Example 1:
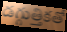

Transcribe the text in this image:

డగ్గుత్తికతో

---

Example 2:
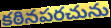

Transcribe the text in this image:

కఠినపరచును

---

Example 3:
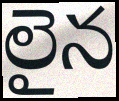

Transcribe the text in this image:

లైన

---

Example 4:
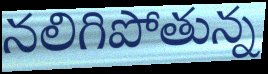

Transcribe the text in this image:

నలిగిపోతున్న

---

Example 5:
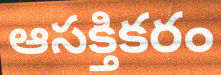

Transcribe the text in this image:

ఆసక్తికరం